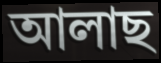
আলাছ